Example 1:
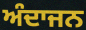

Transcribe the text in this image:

ਅੰਦਾਜਨ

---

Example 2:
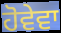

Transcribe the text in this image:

ਹੋਵੇਵਾ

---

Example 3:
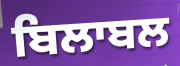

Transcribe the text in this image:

ਬਿਲਾਬਲ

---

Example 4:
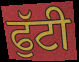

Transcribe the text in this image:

ਫੁੱਟੀ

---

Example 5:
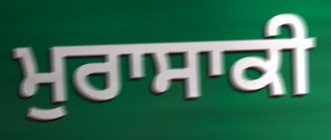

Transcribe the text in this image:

ਮੁਰਾਸਾਕੀ